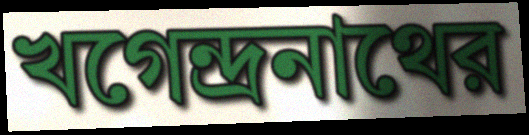
খগেন্দ্রনাথের